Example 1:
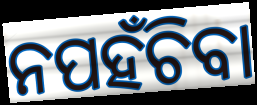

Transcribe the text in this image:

ନପହଁଚିବା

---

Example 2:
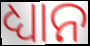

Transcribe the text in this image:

ଧ୍ୟାନ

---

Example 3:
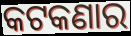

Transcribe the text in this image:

କଟକଣାର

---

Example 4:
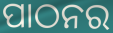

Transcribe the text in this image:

ପାଠନର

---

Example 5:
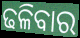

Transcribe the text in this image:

ଢଳିବାର